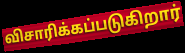
விசாரிக்கப்படுகிறார்